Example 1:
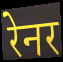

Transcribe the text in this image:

रेनर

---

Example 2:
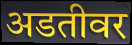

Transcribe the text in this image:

अडतीवर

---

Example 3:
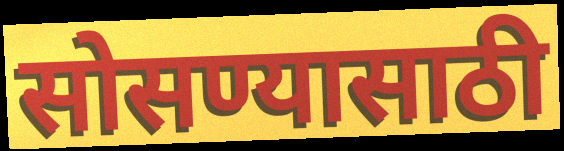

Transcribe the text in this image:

सोसण्यासाठी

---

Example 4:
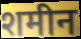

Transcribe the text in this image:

शमीन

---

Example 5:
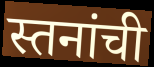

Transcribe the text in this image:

स्तनांची